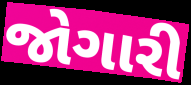
જોગારી